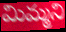
మిమ్మని